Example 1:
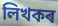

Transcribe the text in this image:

লিখকৰ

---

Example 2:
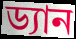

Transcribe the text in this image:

ড্যান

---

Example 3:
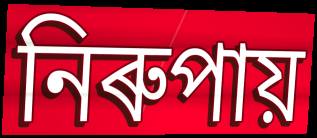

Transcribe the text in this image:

নিৰুপায়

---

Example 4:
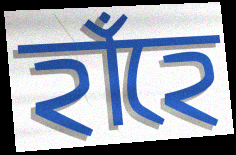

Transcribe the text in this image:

হাঁহে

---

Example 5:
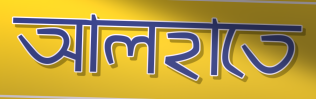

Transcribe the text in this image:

আলহাতে